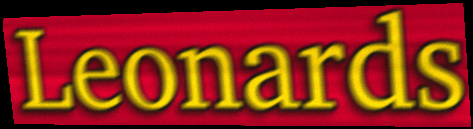
Leonards